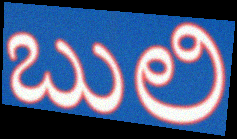
ಬುಲಿ